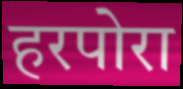
हरपोरा